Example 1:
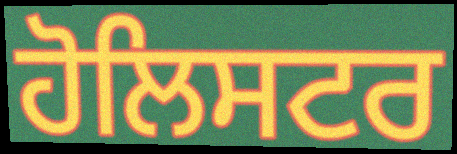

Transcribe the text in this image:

ਹੋਲਿਸਟਰ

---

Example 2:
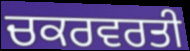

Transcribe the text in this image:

ਚਕਰਵਰਤੀ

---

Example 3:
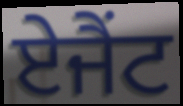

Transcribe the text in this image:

ਏਜੈਂਟ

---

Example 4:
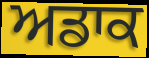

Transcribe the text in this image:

ਅਡਾਕ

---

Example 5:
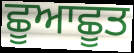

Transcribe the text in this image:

ਛੂਆਛੂਤ